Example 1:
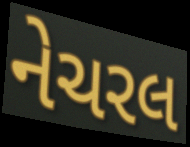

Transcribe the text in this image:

નેચરલ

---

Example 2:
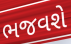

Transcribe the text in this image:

ભજવશે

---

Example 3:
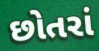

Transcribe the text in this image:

છોતરાં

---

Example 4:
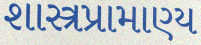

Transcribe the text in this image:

શાસ્ત્રપ્રામાણ્ય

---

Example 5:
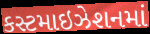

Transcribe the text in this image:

કસ્ટમાઇઝેશનમાં